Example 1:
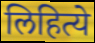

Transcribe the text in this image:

लिहित्ये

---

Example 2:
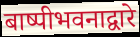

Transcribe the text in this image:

बाष्पीभवनाद्वारे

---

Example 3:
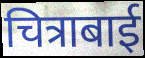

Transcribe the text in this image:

चित्राबाई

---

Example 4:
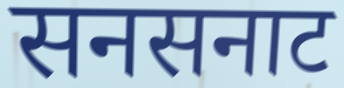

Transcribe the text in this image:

सनसनाट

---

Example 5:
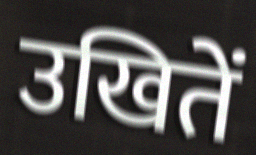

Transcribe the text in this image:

उखितें